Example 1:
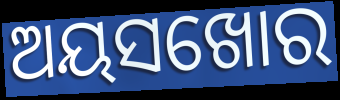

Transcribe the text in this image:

ଅୟସଖୋର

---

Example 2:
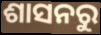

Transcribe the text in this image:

ଶାସନରୁ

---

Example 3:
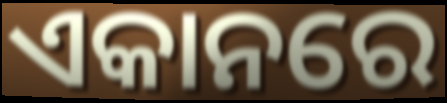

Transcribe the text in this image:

ଏକାନରେ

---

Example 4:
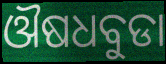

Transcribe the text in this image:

ଔଷଧବୁଡା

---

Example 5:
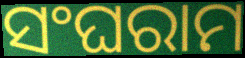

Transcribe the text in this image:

ସଂଘରାମ